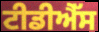
ਟੀਡੀਐੱਸ